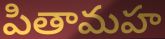
పితామహ